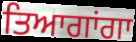
ਤਿਆਗਾਂਗਾ